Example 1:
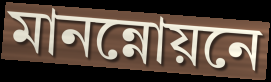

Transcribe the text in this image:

মানন্নোয়নে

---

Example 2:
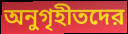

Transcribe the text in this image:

অনুগৃহীতদের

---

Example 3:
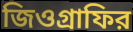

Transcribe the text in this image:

জিওগ্রাফির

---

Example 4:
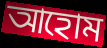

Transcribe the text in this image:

আহোম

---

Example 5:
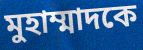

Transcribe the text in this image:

মুহাম্মাদকে